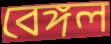
বেঙ্গল